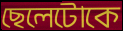
ছেলেটোকে